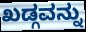
ಖಡ್ಗವನ್ನು